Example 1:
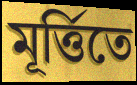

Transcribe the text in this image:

মূর্ত্তিতে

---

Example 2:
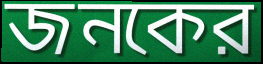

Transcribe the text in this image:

জনকের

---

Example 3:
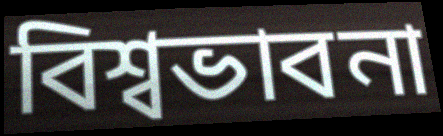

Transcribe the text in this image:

বিশ্বভাবনা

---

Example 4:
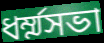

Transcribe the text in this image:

ধর্ম্মসভা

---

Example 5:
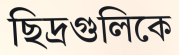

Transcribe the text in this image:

ছিদ্রগুলিকে